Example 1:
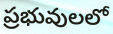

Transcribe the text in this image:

ప్రభువులలో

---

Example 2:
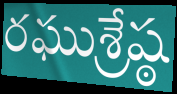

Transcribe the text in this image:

రఘుశ్రేష్ఠ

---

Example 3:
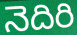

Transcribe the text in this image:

నెదిరి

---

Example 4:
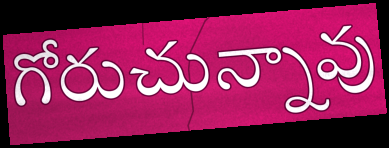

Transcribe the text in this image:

గోరుచున్నావు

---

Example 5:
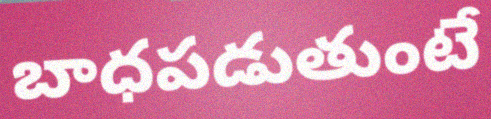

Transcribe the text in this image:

బాధపడుతుంటే